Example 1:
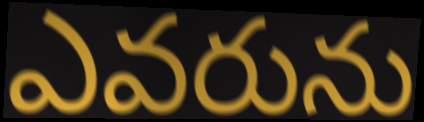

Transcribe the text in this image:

ఎవరును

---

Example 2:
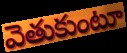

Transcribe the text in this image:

వెతుకుంటూ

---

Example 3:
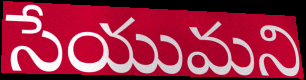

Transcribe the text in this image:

సేయుమని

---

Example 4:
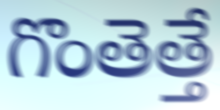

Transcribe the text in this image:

గొంతెత్తే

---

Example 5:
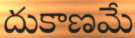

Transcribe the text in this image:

దుకాణమే